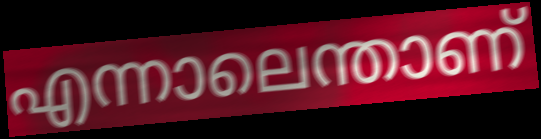
എന്നാലെന്താണ്